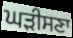
ਘੜੀਸਣਾ